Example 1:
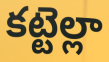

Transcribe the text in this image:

కట్టెల్లా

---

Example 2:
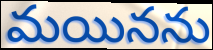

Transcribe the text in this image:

మయినను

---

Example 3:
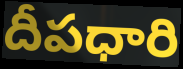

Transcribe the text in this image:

దీపధారి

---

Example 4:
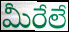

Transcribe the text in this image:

మీరేలే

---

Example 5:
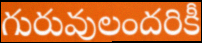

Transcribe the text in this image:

గురువులందరికీ